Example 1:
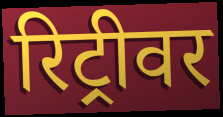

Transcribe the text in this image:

रिट्रीवर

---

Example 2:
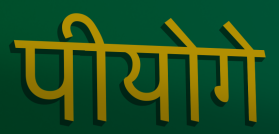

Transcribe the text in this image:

पीयोगे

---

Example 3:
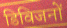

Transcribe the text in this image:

डिविजनों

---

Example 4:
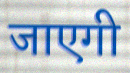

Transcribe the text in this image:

जाएगी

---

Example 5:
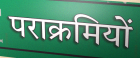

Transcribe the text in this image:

पराक्रमियों